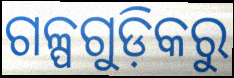
ଗଳ୍ପଗୁଡ଼ିକରୁ